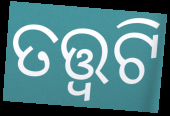
ତତ୍ତ୍ଵଟି